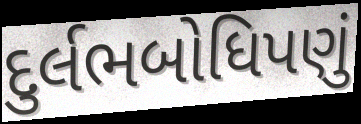
દુર્લભબોધિપણું